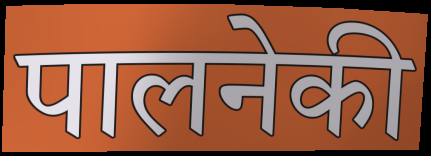
पालनेकी